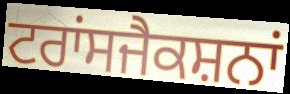
ਟਰਾਂਸਜੈਕਸ਼ਨਾਂ